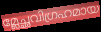
മ്ലേച്ഛവിഗ്രഹമായ